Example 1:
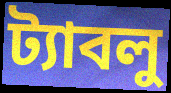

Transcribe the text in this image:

ট্যাবলু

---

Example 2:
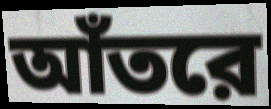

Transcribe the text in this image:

আঁতরে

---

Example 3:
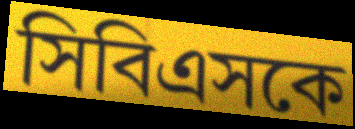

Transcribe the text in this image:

সিবিএসকে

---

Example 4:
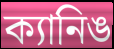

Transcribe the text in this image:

ক্যানিঙ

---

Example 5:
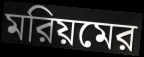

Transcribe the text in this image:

মরিয়মের